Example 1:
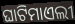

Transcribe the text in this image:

ଘାଟିମାଏଲୀ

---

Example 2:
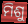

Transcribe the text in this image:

ମିଶୁ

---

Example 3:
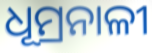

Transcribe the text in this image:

ଧୂମ୍ରନାଳୀ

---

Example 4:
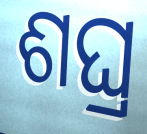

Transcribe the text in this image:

ଶଘ୍ର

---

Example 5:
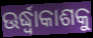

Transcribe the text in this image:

ଊର୍ଦ୍ଧ୍ୱାକାଶକୁ